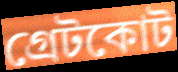
গ্রেটকোট